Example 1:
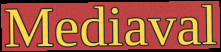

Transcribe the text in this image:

Mediaval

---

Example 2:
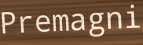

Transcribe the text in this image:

Premagni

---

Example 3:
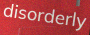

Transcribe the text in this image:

disorderly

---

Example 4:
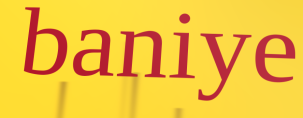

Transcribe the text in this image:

baniye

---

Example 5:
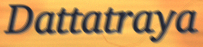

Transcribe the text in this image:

Dattatraya